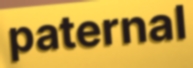
paternal